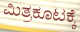
ಮಿತ್ರಕೂಟಕ್ಕೆ